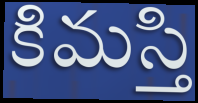
కిమస్తి